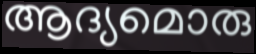
ആദ്യമൊരു